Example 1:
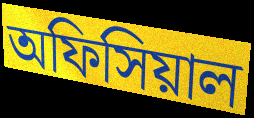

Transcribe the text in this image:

অফিসিয়াল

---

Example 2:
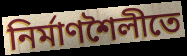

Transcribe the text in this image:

নির্মাণশৈলীতে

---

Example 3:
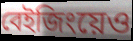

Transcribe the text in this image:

বেইজিংয়েও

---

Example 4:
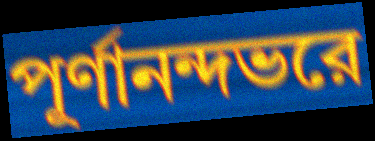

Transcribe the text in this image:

পূর্ণানন্দভরে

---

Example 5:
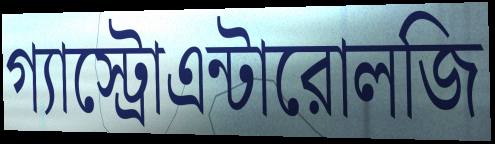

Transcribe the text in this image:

গ্যাস্ট্রোএন্টারোলজি